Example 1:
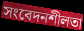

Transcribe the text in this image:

সংবেদনশীলতা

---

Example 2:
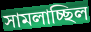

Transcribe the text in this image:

সামলাচ্ছিল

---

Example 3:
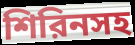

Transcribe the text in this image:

শিরিনসহ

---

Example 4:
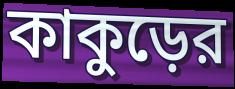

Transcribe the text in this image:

কাকুড়ের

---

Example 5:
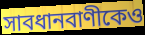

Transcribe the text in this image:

সাবধানবাণীকেও